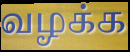
வழக்க